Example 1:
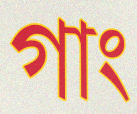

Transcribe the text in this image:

গাং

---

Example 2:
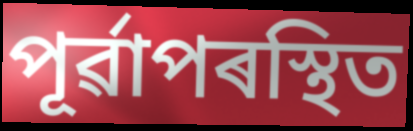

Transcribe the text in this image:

পূৰ্ৱাপৰস্থিত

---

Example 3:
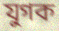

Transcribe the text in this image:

যুগক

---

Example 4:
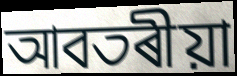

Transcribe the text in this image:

আবতৰীয়া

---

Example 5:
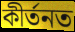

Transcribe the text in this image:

কীৰ্তনত